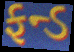
ફન્ડ